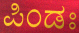
ಪಿಂಡಃ